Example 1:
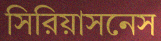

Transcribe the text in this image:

সিরিয়াসনেস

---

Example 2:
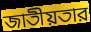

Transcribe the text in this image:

জাতীয়তার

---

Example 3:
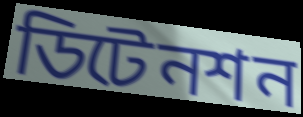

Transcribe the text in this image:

ডিটেনশন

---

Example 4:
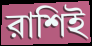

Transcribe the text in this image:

রাশিই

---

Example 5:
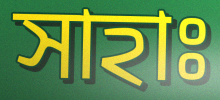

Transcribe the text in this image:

সাহাঃ